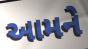
આમને